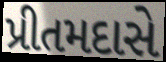
પ્રીતમદાસે